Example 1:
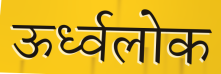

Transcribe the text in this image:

ऊर्ध्वलोक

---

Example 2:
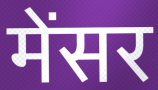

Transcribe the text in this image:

मेंसर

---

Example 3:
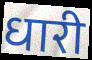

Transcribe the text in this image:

धारी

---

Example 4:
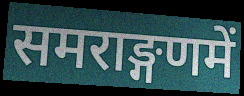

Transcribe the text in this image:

समराङ्गणमें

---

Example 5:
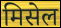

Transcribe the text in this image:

मिसेल